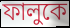
ফালুকে